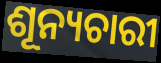
ଶୂନ୍ୟଚାରୀ